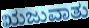
ಋಜುವಾತು